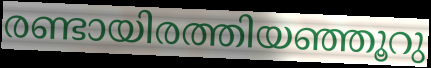
രണ്ടായിരത്തിയഞ്ഞൂറു